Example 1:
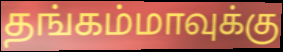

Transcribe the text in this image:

தங்கம்மாவுக்கு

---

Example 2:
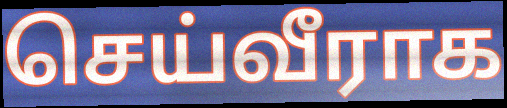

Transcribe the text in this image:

செய்வீராக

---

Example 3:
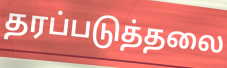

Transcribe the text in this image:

தரப்படுத்தலை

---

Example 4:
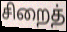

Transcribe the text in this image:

சிறைத்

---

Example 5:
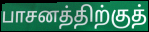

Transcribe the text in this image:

பாசனத்திற்குத்